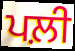
ਪਲ਼ੀ